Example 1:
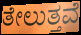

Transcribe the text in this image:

ತೇಲುತ್ತವೆ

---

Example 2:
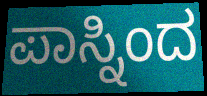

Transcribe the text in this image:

ಪಾಸ್ನಿಂದ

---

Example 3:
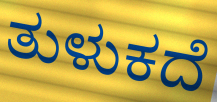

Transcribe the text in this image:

ತುಳುಕದೆ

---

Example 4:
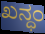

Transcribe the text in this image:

ಖನ್ಧಂ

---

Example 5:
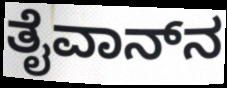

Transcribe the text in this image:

ತೈವಾನ್‌ನ